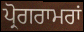
ਪ੍ਰੋਗਰਾਮਰਾਂ